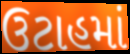
ઉટાહમાં